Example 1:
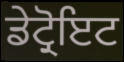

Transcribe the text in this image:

ਡੇਟ੍ਰੋਇਟ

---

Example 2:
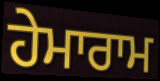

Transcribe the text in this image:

ਹੇਮਾਰਾਮ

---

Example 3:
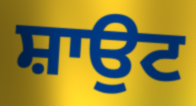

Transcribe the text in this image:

ਸ਼ਾਉਟ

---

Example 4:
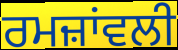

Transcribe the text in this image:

ਰਮਜ਼ਾਂਵਲੀ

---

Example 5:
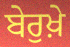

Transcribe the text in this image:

ਬੇਰੁਖ਼ੇ